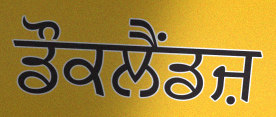
ਡੌਕਲੈਂਡਜ਼